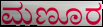
ಮಣೂರ